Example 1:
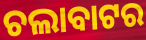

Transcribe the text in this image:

ଚଲାବାଟର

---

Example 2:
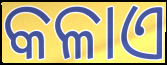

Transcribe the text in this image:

କଳାଏ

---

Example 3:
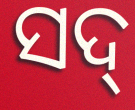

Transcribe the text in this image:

ସଦ୍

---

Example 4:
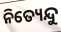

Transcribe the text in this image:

ନିତ୍ୟେନ୍ଦୁ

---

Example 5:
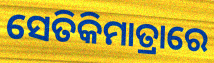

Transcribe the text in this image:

ସେତିକିମାତ୍ରାରେ